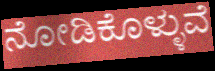
ನೋಡಿಕೊಳ್ಳುವೆ